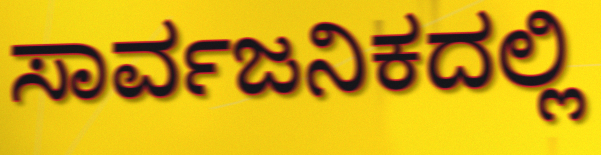
ಸಾರ್ವಜನಿಕದಲ್ಲಿ